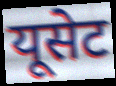
यूसेट